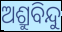
ଅଶ୍ରୁବିନ୍ଦୁ